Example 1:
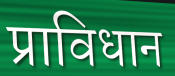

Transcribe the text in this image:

प्राविधान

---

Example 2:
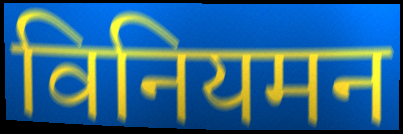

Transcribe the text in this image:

विनियमन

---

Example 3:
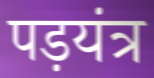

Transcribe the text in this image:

पड़यंत्र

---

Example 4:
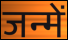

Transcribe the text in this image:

जन्में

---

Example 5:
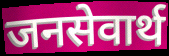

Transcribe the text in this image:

जनसेवार्थ